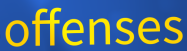
offenses